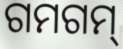
ଗମଗମ୍